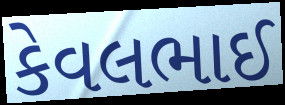
કેવલભાઈ